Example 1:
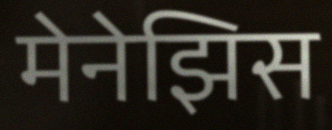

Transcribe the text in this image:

मेनेझिस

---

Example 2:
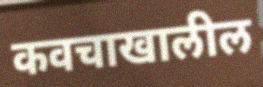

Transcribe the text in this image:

कवचाखालील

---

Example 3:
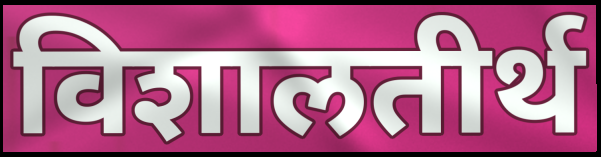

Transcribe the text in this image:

विशालतीर्थ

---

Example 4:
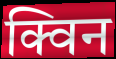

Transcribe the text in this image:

क्विन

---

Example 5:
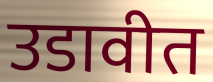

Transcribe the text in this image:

उडावीत